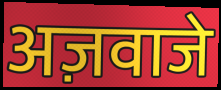
अज़वाजे